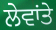
ਲੇਵਾਂਤੇ